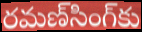
రమణ్‌సింగ్‌కు